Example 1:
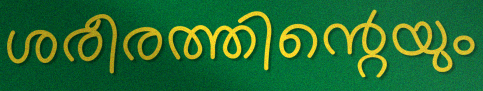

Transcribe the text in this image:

ശരീരത്തിന്റെയും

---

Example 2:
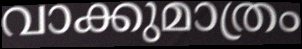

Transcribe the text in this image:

വാക്കുമാത്രം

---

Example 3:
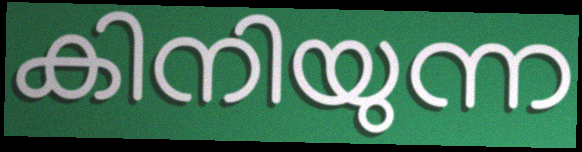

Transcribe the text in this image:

കിനിയുന്ന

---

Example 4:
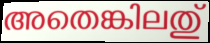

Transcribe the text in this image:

അതെങ്കിലതു്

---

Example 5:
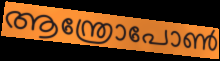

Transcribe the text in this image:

ആന്ത്രോപോൺ